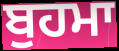
ਬੁਹਮਾ